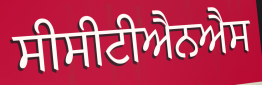
ਸੀਸੀਟੀਐਨਐਸ